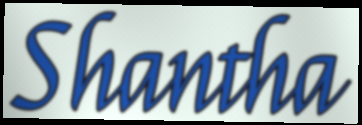
Shantha